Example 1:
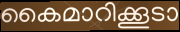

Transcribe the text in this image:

കൈമാറിക്കൂടാ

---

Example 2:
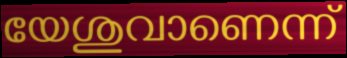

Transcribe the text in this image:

യേശുവാണെന്ന്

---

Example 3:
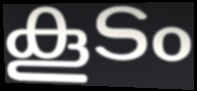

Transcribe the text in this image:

കൂടം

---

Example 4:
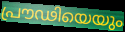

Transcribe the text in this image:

പ്രൗഢിയെയും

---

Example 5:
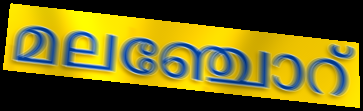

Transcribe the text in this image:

മലഞ്ചോറ്